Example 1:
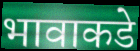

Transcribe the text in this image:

भावाकडे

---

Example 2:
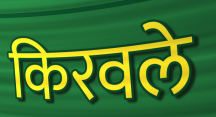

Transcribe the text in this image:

किरवले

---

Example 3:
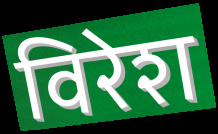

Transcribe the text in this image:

विरेश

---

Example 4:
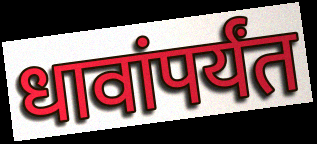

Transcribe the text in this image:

धावांपर्यंत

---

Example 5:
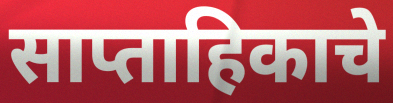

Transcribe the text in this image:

साप्ताहिकाचे